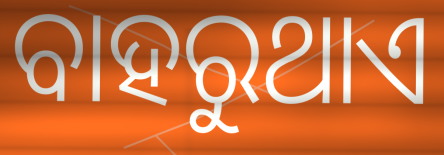
ବାହରୁଥାଏ